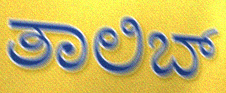
ತಾಲಿಬ್